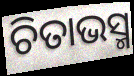
ଚିତାଭସ୍ମ